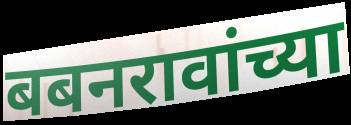
बबनरावांच्या